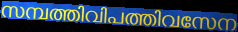
സമ്പത്തിവിപത്തിവസേന